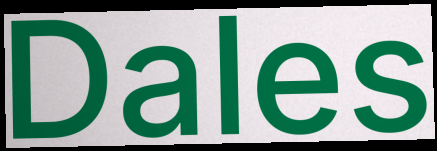
Dales